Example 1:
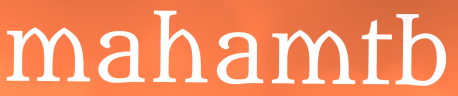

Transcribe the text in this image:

mahamtb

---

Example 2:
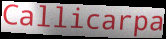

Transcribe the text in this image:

Callicarpa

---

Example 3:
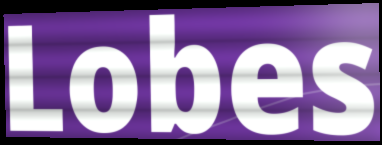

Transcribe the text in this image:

Lobes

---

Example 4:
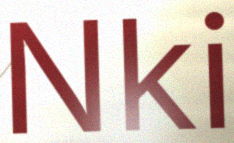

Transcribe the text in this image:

Nki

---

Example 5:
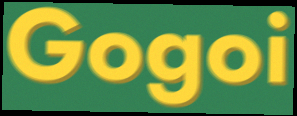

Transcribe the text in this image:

Gogoi